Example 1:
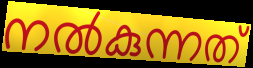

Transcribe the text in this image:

നൽകുന്നത്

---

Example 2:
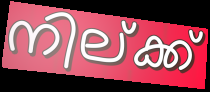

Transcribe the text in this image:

നില്ക്ക്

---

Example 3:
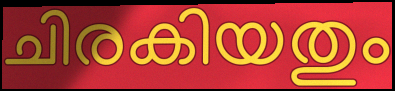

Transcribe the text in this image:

ചിരകിയതും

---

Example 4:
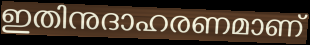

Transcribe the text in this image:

ഇതിനുദാഹരണമാണ്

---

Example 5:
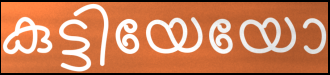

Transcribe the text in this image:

കുട്ടിയേയോ